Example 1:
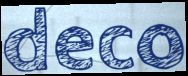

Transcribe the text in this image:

deco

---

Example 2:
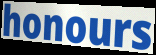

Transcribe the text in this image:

honours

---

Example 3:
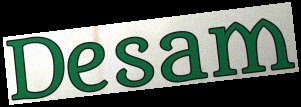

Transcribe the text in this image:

Desam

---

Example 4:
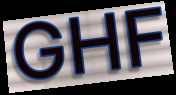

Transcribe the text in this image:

GHF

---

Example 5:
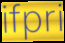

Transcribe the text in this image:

ifpri